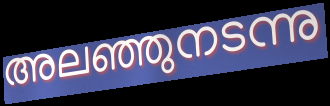
അലഞ്ഞുനടന്നു